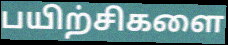
பயிற்சிகளை